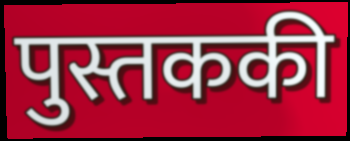
पुस्तककी